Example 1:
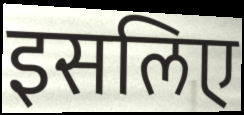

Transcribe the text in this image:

इसलिए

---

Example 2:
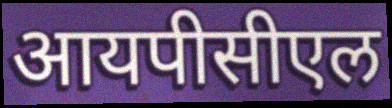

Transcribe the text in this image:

आयपीसीएल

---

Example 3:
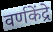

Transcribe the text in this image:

वर्णकेंद्रे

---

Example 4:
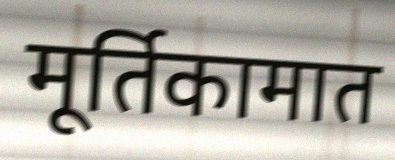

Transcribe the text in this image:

मूर्तिकामात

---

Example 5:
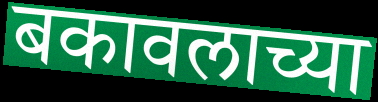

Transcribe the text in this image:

बकावलाच्या